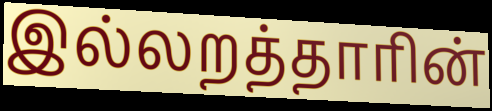
இல்லறத்தாரின்